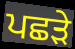
ਪਛੜੇ